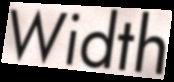
Width